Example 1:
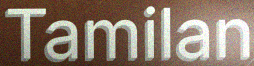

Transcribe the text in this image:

Tamilan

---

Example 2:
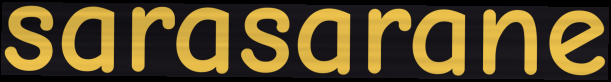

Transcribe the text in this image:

sarasarane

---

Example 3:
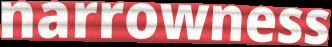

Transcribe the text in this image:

narrowness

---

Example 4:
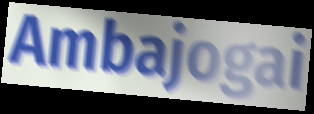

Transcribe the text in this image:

Ambajogai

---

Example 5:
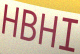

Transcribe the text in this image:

HBHI